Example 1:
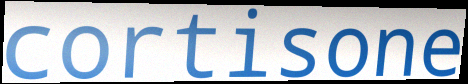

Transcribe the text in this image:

cortisone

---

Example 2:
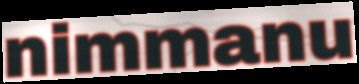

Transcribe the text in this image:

nimmanu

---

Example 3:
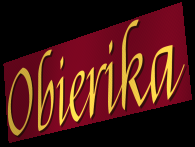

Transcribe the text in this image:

Obierika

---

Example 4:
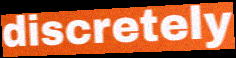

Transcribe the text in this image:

discretely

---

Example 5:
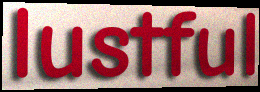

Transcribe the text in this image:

lustful